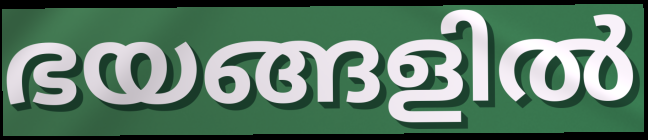
ഭയങ്ങളിൽ